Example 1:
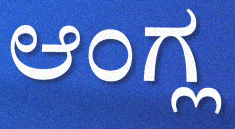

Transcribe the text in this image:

ಆಂಗ್ಲ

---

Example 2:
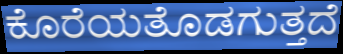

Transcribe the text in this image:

ಕೊರೆಯತೊಡಗುತ್ತದೆ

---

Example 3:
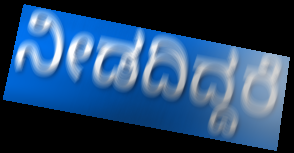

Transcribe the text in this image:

ನೀಡದಿದ್ದರೆ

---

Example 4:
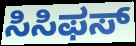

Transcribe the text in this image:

ಸಿಸಿಫಸ್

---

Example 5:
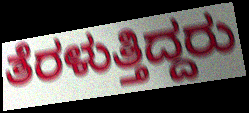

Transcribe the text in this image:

ತೆರಳುತ್ತಿದ್ದರು